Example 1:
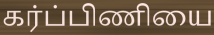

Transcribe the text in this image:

கர்ப்பிணியை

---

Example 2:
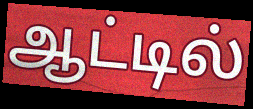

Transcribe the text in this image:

ஆட்டில்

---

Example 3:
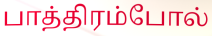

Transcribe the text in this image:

பாத்திரம்போல்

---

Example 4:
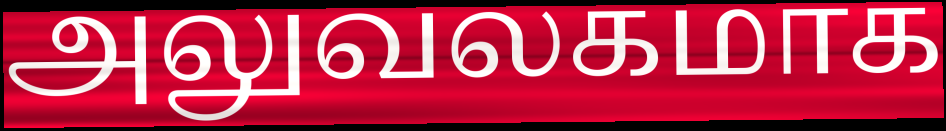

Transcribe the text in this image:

அலுவலகமாக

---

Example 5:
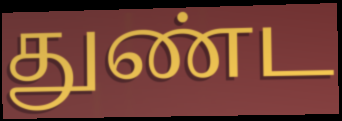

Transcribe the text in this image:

துண்ட